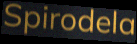
Spirodela